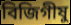
বিজিগীষু